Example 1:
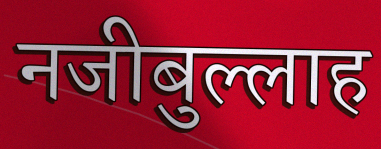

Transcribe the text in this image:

नजीबुल्लाह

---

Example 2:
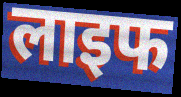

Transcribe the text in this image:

लाइफ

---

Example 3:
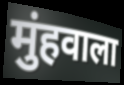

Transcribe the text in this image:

मुंहवाला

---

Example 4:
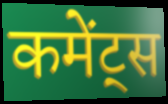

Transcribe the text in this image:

कमेंट्स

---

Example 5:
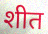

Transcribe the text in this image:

शीत